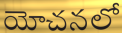
యోచనలో